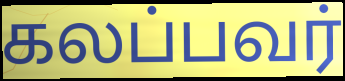
கலப்பவர்